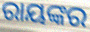
ରାୟଙ୍କର